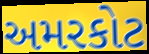
અમરકોટ